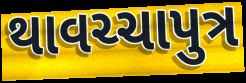
થાવચ્ચાપુત્ર